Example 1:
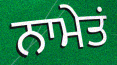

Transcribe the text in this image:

ਨਾਮੇਤਂ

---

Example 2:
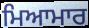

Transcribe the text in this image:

ਮਿਆਮਾਰ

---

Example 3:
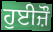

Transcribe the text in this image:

ਹੁਈਜ਼ੌ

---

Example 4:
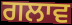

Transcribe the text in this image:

ਗਲਾਵ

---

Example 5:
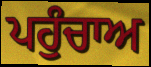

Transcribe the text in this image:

ਪਹੁੰਚਾਅ